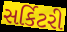
સર્કિટરી